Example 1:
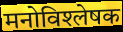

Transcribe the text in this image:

मनोविश्लेषक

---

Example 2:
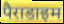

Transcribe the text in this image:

पैराडाइम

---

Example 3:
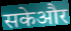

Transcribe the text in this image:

सकेऔर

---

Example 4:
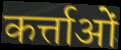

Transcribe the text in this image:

कर्त्ताओं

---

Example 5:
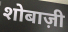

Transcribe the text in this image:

शोबाज़ी